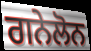
ਗਨੇਲੋਨ